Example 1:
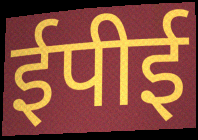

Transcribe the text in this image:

ईपीई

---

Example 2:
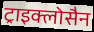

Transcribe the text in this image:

ट्राइक्लोसैन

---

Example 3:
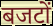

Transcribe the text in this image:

बजटों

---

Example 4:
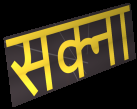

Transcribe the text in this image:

सक्ना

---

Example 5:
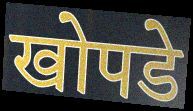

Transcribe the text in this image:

खोपडे